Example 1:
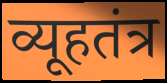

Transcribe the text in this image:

व्यूहतंत्र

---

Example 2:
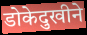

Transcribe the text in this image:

डोकेदुखीने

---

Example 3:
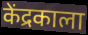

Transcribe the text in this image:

केंद्रकाला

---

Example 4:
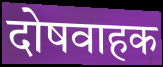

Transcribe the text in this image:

दोषवाहक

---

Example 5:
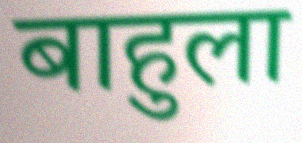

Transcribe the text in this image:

बाहुला